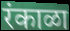
रंकाळा